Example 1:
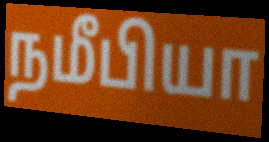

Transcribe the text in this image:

நமீபியா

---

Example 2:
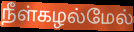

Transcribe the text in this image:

நீள்கழல்மேல்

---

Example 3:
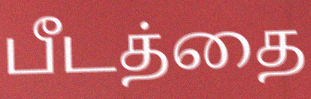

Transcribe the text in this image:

பீடத்தை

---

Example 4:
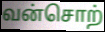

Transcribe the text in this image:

வன்சொற்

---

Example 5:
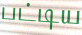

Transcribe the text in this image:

பட்டிய